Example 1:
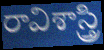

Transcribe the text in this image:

రావిశాస్త్రి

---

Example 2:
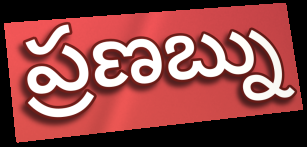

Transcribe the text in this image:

ప్రణబ్ను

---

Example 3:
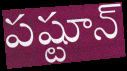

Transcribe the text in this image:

పష్టూన్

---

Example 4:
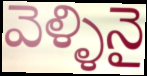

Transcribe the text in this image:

వెళ్ళినై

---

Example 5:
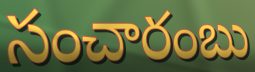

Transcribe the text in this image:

సంచారంబు